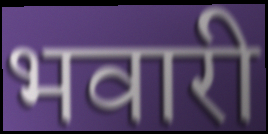
भवारी